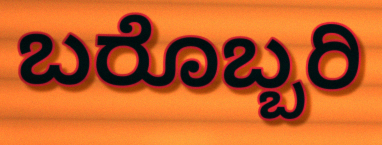
ಬರೊಬ್ಬರಿ